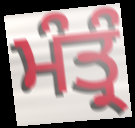
ਮੰਤ੍ਰੰ